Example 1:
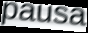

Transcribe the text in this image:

pausa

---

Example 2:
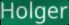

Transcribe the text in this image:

Holger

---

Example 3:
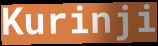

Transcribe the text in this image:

Kurinji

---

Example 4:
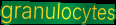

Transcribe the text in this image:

granulocytes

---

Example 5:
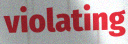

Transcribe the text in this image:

violating